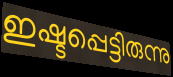
ഇഷ്ടപ്പെട്ടിരുന്നു